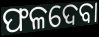
ଫଳଦେବା